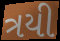
ત્રયી